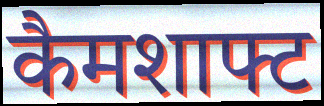
कैमशाफ्ट